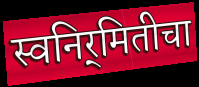
स्वनिर्मितीचा